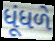
ધૂંધળે